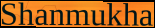
Shanmukha